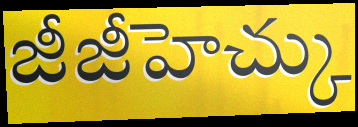
జీజీహెచ్కు